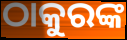
ଠାକୁରଙ୍କ